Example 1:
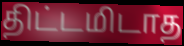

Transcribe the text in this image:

திட்டமிடாத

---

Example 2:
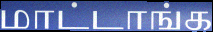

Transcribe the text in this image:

மாட்டாங்க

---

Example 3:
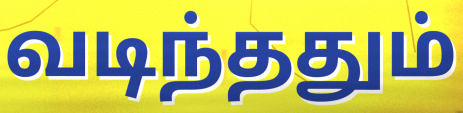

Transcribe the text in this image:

வடிந்ததும்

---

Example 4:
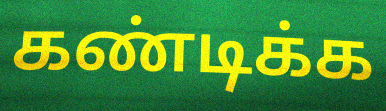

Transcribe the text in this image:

கண்டிக்க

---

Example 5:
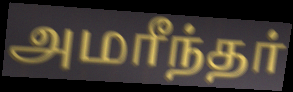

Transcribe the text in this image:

அமரீந்தர்